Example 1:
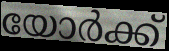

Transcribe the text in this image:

യോർക്ക്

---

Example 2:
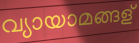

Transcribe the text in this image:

വ്യായാമങ്ങള്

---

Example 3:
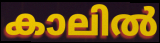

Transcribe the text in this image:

കാലിൽ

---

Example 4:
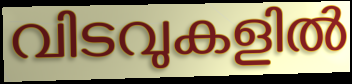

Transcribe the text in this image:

വിടവുകളിൽ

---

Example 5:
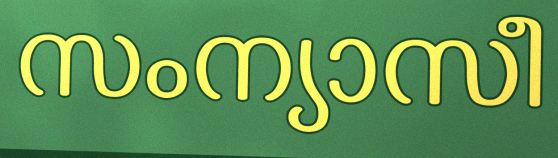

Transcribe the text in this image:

സംന്യാസീ